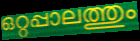
ഒറ്റപ്പാലത്തും